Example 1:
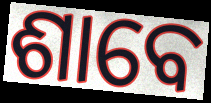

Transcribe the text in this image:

ଶାବେ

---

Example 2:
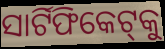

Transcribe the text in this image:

ସାର୍ଟିଫିକେଟ୍‌କୁ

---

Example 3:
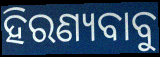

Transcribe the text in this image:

ହିରଣ୍ୟବାବୁ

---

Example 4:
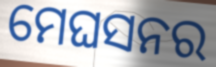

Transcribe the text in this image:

ମେଘସନର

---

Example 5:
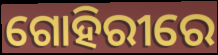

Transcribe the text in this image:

ଗୋହିରୀରେ